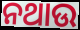
ନଥାଉ